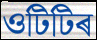
ওটিটিৰ